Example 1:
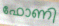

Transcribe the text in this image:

ഫോണി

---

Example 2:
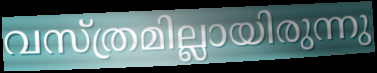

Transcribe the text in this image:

വസ്ത്രമില്ലായിരുന്നു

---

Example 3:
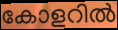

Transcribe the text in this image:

കോളറിൽ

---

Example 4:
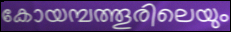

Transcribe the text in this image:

കോയമ്പത്തൂരിലെയും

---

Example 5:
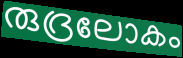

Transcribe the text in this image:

രുദ്രലോകം